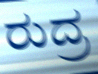
ರುದ್ರ